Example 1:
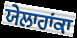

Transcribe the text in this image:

ਯੇਲਾਹਾਂਕਾ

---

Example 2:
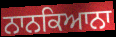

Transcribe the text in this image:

ਨਾਨਕਿਆਨਾ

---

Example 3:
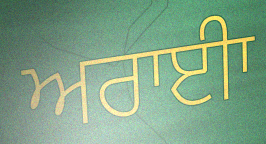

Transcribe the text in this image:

ਅਰਾਈਾ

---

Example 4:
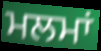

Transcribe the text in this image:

ਮਲਮਾਂ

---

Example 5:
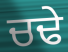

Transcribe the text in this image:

ਚਢੇ